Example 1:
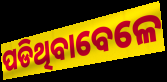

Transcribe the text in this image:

ପଡିଥିବାବେଳେ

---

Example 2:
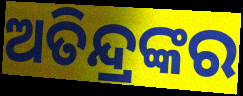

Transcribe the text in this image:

ଅତିନ୍ଦ୍ରଙ୍କର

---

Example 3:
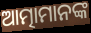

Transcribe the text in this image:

ଆତ୍ମାମାନଙ୍କ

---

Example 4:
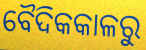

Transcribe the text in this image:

ବୈଦିକକାଳରୁ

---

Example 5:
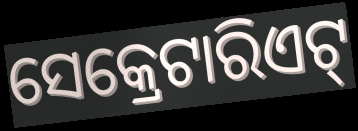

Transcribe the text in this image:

ସେକ୍ରେଟାରିଏଟ୍